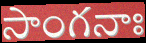
సాంగనాః